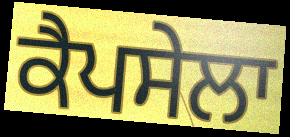
ਕੈਪਸੇਲਾ